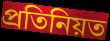
প্রতিনিয়ত